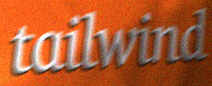
tailwind